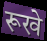
रूखे